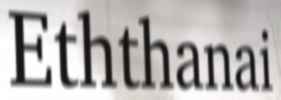
Eththanai